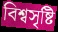
বিশ্বসৃষ্টি